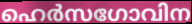
ഹെർസഗോവിന